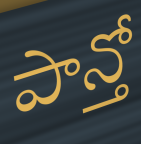
పాన్తో